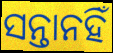
ସନ୍ତାନହିଁ